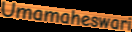
Umamaheswari